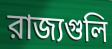
রাজ্যগুলি